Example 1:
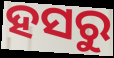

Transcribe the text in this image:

ହସରୁ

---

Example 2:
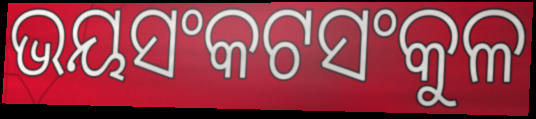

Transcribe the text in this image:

ଭୟସଂକଟସଂକୁଳ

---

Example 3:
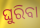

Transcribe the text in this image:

ଘୁରିବା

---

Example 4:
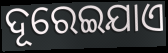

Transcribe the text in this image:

ଦୂରେଇଯାଏ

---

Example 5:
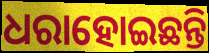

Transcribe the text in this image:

ଧରାହୋଇଛନ୍ତି